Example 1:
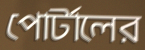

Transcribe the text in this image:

পোর্টালের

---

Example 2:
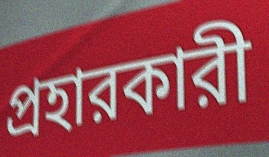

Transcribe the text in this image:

প্রহারকারী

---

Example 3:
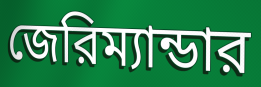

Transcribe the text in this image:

জেরিম্যান্ডার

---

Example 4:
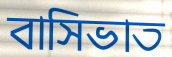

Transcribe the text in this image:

বাসিভাত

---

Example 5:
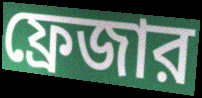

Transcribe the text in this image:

ফ্রেজার